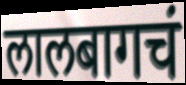
लालबागचं